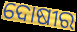
ଦୋଷୀର